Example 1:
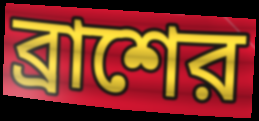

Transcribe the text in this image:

ব্রাশের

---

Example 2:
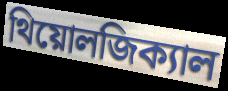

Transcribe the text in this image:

থিয়োলজিক্যাল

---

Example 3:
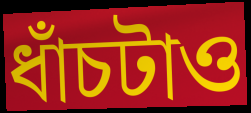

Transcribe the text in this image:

ধাঁচটাও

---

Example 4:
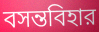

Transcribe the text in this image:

বসন্তবিহার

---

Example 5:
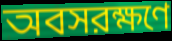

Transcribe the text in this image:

অবসরক্ষণে